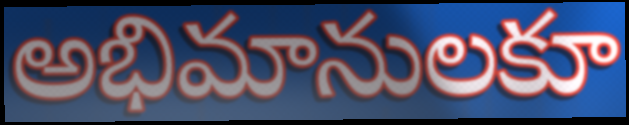
అభిమానులకూ